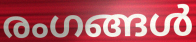
രംഗങ്ങൾ